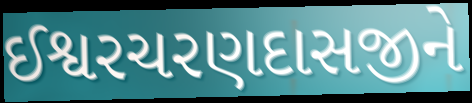
ઈશ્વરચરણદાસજીને